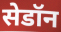
सेडॉन